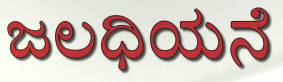
ಜಲಧಿಯನೆ